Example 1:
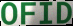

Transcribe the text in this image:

OFID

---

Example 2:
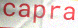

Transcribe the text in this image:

capra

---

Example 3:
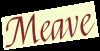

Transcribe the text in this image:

Meave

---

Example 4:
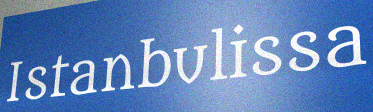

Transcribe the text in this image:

Istanbulissa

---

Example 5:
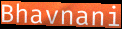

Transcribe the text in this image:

Bhavnani